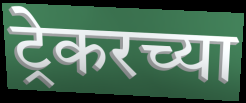
ट्रेकरच्या